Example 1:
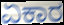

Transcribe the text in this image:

ಏಕಾರ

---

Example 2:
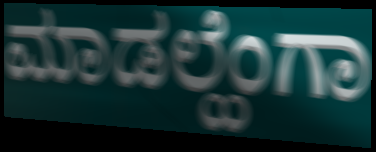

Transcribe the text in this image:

ಮಾಡಲ್ಹೆಂಗಾ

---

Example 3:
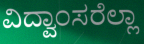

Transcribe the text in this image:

ವಿದ್ವಾಂಸರೆಲ್ಲಾ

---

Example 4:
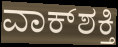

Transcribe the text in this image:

ವಾಕ್‌ಶಕ್ತಿ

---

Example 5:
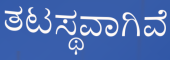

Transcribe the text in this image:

ತಟಸ್ಥವಾಗಿವೆ